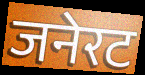
जनेरट